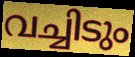
വച്ചിടും